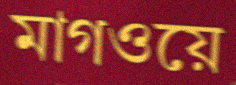
মাগওয়ে